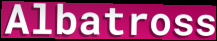
Albatross